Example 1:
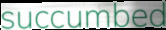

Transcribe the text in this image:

succumbed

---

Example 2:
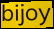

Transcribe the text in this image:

bijoy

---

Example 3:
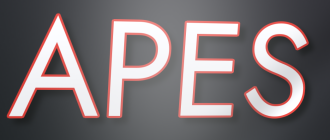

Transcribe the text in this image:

APES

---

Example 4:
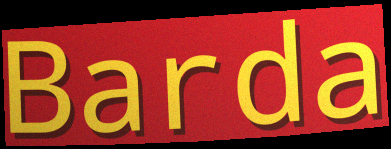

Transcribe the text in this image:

Barda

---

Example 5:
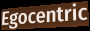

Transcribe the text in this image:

Egocentric